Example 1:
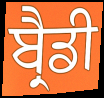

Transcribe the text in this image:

ਬ੍ਰੈਡੀ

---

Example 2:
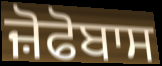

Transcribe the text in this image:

ਜ਼ੋਫੋਬਾਸ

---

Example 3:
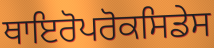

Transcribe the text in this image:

ਥਾਇਰੋਪਰੋਕਸਿਡੇਸ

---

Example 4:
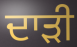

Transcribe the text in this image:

ਦਾੜੀ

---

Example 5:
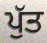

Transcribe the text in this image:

ਪੁੱਤ